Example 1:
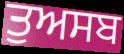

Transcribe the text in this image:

ਤੁਅਸਬ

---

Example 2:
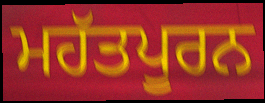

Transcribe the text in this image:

ਮਹੱਤਪੂਰਨ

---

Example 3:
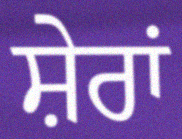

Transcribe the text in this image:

ਸ਼ੇਰਾਂ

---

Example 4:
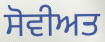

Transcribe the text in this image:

ਸੋਵੀਅਤ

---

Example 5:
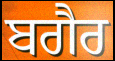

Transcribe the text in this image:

ਬਗੈਰ